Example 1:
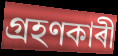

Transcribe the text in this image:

গ্ৰহণকাৰী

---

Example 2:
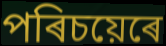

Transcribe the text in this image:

পৰিচয়েৰে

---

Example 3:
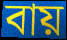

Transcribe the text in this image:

বায়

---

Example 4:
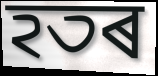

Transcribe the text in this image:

হতৰ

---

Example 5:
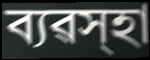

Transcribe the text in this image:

ব্যৱস্হা